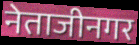
नेताजीनगर